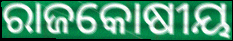
ରାଜକୋଷୀୟ